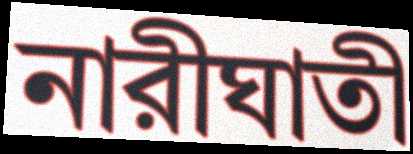
নারীঘাতী